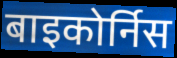
बाइकोर्निस